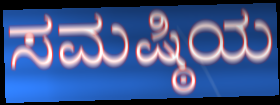
ಸಮಷ್ಠಿಯ